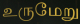
உருமேறு